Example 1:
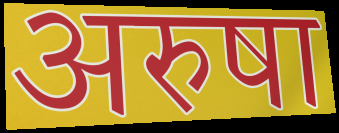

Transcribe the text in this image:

अरुषा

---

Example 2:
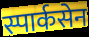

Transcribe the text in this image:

स्पार्कसेन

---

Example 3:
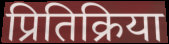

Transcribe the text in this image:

प्रितिक्रिया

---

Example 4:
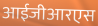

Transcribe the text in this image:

आईजीआरएस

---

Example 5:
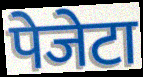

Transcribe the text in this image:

पेजेटा